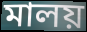
মালয়